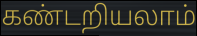
கண்டறியலாம்